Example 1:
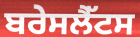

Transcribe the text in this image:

ਬਰੇਸਲੈੱਟਸ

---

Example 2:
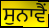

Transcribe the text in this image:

ਸੁਨਾਵੈਂ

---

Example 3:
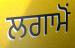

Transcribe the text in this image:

ਲਗਾਮੋਂ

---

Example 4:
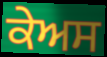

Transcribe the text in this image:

ਕੇਅਸ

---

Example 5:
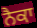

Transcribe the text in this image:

ਨੈਕਾ